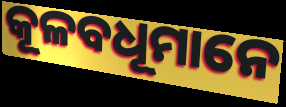
କୂଳବଧୂମାନେ